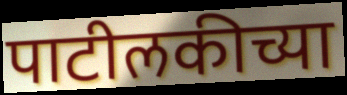
पाटीलकीच्या